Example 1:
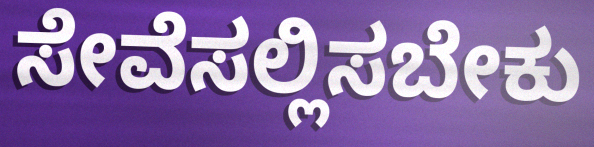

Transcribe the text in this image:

ಸೇವೆಸಲ್ಲಿಸಬೇಕು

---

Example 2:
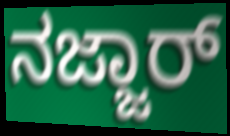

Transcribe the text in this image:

ನಜ್ಜಾರ್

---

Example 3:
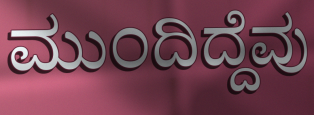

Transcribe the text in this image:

ಮುಂದಿದ್ದೆವು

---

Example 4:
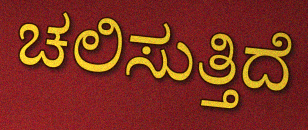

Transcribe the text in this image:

ಚಲಿಸುತ್ತಿದೆ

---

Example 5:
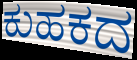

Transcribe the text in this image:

ಕುಹಕದ